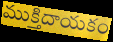
ముక్తిదాయకం